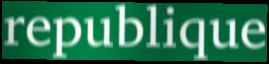
republique